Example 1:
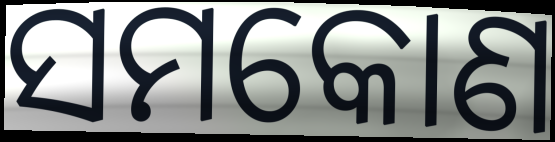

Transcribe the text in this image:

ସମକୋଣ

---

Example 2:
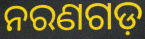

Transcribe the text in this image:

ନରଣଗଡ଼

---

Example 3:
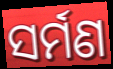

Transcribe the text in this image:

ସର୍ମଣ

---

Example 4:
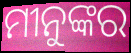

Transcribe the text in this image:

ମୀନୁଙ୍କର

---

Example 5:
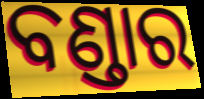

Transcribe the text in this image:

ବଣ୍ଡାର